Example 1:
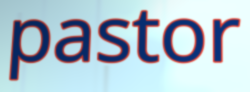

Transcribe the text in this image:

pastor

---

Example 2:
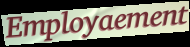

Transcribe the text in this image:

Employaement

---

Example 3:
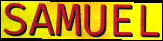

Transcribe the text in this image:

SAMUEL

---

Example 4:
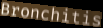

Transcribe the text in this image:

Bronchitis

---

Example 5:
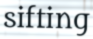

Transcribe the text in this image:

sifting